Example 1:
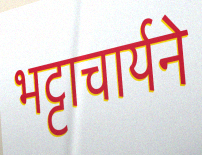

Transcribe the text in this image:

भट्टाचार्यने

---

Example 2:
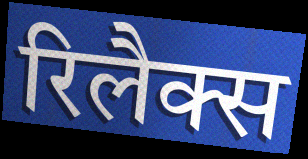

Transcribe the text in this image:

रिलैक्‍स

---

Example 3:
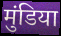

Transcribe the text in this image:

मुंडिया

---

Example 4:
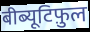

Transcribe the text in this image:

बीब्यूटिफ़ुल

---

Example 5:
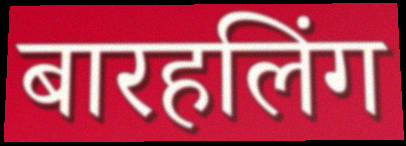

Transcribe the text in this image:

बारहलिंग